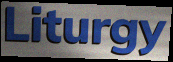
Liturgy